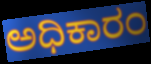
ಅಧಿಕಾರಂ